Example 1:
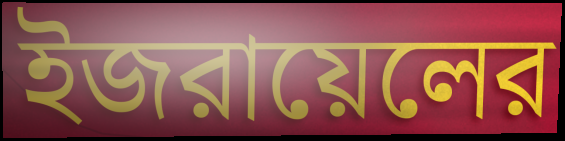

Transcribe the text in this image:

ইজরায়েলের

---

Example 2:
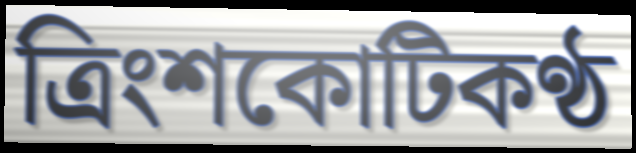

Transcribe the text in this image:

ত্রিংশকোটিকণ্ঠ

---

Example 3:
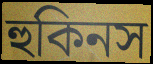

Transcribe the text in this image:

হুকিনস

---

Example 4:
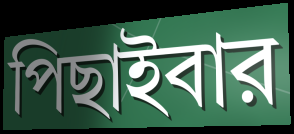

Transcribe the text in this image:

পিছাইবার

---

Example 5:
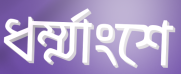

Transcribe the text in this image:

ধর্ম্মাংশে